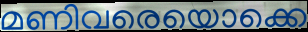
മണിവരെയൊക്കെ